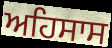
ਅਹਿਸਾਸ